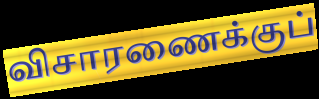
விசாரணைக்குப்